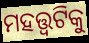
ମହତ୍ତ୍ୱଟିକୁ